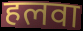
हलवा